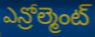
ఎన్రోల్మెంట్